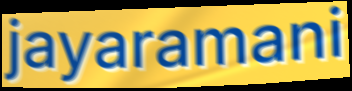
jayaramani